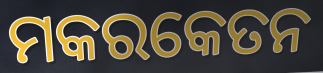
ମକରକେତନ